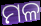
ମଳ